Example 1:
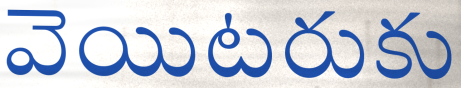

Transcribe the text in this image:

వెయిటరుకు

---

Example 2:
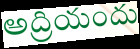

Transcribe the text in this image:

అద్రియందు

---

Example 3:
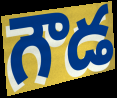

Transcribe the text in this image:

గౌడ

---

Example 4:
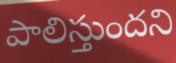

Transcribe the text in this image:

పాలిస్తుందని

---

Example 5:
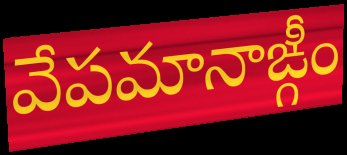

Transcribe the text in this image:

వేపమానాఙ్గీం